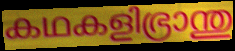
കഥകളിഭ്രാന്തു